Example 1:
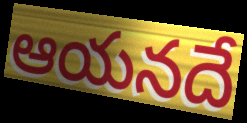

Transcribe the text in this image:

ఆయనదే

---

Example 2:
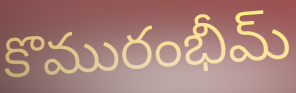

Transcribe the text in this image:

కొమురంభీమ్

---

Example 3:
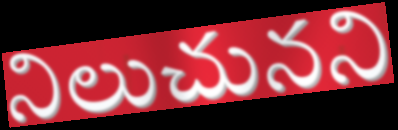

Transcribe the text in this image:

నిలుచునని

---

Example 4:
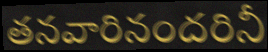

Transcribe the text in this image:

తనవారినందరినీ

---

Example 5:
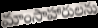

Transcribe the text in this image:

మాంసాహారులను